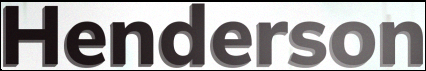
Henderson